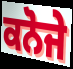
ਕਨੋਜੇ